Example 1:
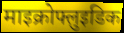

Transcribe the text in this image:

माइक्रोफ्लुइडिक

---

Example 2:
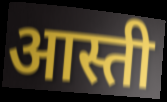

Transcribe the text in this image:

आस्ती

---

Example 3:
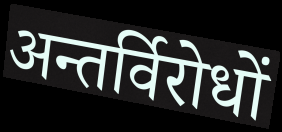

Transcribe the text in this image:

अन्तर्विरोधों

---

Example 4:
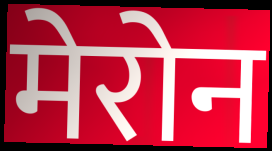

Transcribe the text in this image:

मेरोन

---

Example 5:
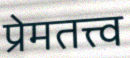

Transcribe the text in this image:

प्रेमतत्त्व